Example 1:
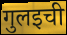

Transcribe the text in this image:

गुलइची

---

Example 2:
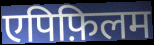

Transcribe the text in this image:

एपिफ़िलम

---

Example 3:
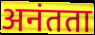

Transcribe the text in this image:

अनंतता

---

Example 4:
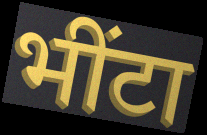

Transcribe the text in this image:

भींटा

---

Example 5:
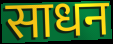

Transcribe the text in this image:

साधन